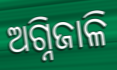
ଅଗ୍ନିଜାଳି